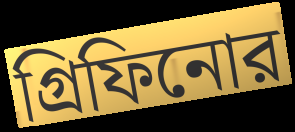
গ্রিফিনোর